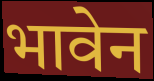
भावेन